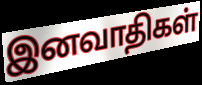
இனவாதிகள்